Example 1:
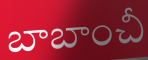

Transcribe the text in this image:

బాబాంచీ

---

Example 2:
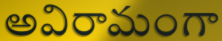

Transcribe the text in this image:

అవిరామంగా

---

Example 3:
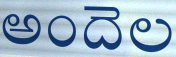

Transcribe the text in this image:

అందెల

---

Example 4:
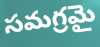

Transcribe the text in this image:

సమగ్రమై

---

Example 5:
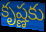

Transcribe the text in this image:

కృష్ణకు